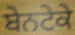
ਬੇਨਟੇਕੇ